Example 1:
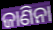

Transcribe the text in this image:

ଜାଣିନା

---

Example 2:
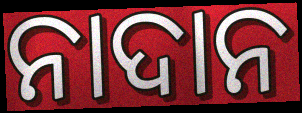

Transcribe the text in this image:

ନାଦାନ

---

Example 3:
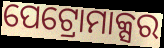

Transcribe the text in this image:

ପେଟ୍ରୋମାକ୍ସର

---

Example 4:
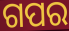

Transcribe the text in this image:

ଗପର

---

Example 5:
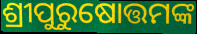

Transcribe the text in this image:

ଶ୍ରୀପୁରୁଷୋତ୍ତମଙ୍କ